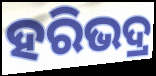
ହରିଭଦ୍ର